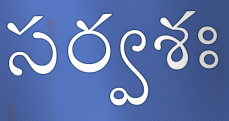
సర్వశః